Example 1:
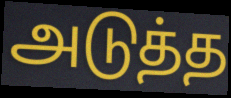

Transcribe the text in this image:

அடுத்த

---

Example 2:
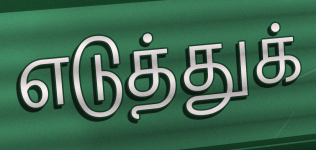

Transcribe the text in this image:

எடுத்துக்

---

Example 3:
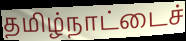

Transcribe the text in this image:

தமிழ்நாட்டைச்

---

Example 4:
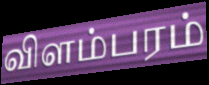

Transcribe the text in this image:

விளம்பரம்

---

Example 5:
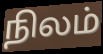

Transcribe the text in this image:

நிலம்